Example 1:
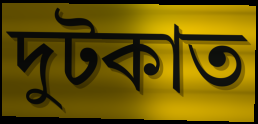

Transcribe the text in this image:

দুটকাত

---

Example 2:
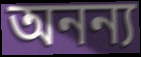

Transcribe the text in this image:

অনন্য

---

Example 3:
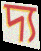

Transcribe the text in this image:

দ্য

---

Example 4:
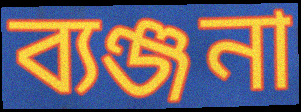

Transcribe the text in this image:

ব্যঞ্জনা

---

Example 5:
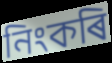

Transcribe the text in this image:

নিংকৰি